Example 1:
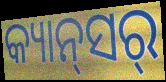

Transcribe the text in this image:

କ୍ୟାନ୍‍ସର୍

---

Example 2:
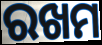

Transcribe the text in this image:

ରଖମ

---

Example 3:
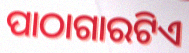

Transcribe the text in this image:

ପାଠାଗାରଟିଏ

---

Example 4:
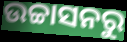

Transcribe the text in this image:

ଉଚ୍ଚାସନରୁ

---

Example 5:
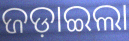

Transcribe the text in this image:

ଜଡ଼ାଇଲା